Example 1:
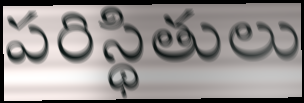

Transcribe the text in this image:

పరిస్థితులు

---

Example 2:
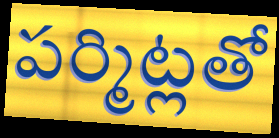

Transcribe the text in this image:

పర్మిట్లతో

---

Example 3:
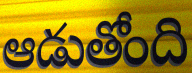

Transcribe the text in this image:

ఆడుతోంది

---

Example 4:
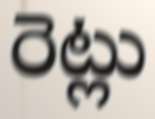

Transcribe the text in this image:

రెట్లు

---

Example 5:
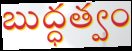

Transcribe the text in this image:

బుద్ధత్వం